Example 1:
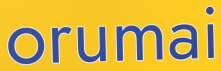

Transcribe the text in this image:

orumai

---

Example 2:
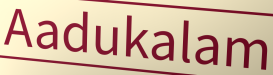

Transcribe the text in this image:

Aadukalam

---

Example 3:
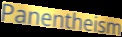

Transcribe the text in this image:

Panentheism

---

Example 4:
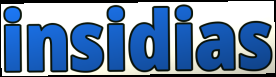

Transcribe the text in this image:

insidias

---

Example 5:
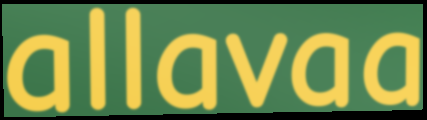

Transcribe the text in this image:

allavaa